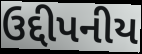
ઉદ્દીપનીય